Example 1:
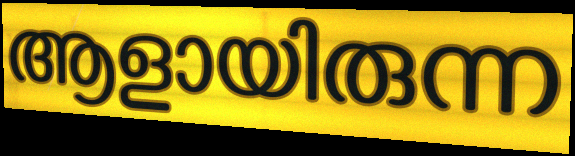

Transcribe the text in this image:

ആളായിരുന്ന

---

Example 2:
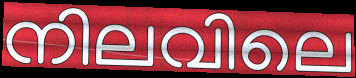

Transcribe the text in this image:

നിലവിലെ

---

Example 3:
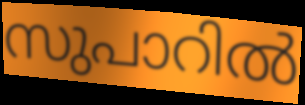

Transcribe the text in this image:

സുപാറിൽ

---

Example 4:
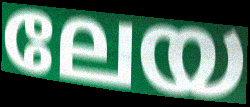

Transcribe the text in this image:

ലേയ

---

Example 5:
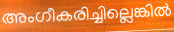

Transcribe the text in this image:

അംഗീകരിച്ചില്ലെങ്കിൽ